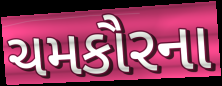
ચમકૌરના